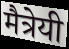
मैत्रेयी